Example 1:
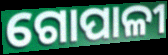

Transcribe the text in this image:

ଗୋପାଳୀ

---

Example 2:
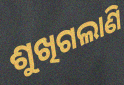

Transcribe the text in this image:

ଶୁଖିଗଲାଣି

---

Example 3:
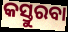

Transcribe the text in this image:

କସ୍ତୁରବା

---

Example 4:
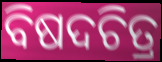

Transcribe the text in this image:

ବିଷଦଚିତ୍ର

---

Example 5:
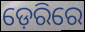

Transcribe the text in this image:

ଡ଼େରିରେ